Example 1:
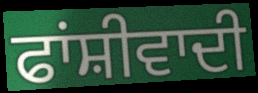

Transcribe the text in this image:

ਫਾਂਸ਼ੀਵਾਦੀ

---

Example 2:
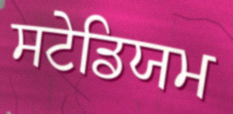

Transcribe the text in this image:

ਸਟੇਡਿਯਮ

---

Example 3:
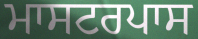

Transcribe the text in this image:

ਮਾਸਟਰਪਾਸ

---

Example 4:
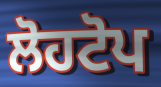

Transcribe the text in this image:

ਲੋਹਟੋਪ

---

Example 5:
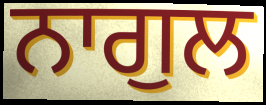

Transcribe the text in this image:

ਨਾਗੁਲ